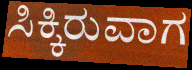
ಸಿಕ್ಕಿರುವಾಗ